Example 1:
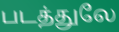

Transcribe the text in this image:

படத்துலே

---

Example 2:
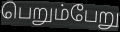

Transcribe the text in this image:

பெறும்பேறு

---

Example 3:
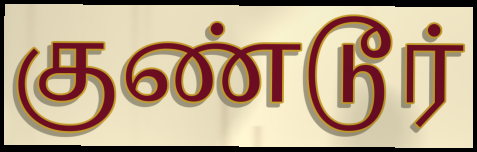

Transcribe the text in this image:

குண்டூர்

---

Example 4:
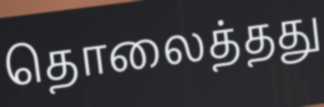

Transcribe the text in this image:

தொலைத்தது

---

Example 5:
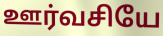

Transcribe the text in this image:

ஊர்வசியே